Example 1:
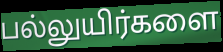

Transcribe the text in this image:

பல்லுயிர்களை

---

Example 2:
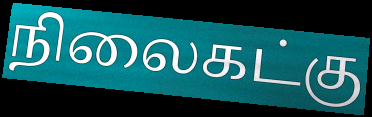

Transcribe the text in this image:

நிலைகட்கு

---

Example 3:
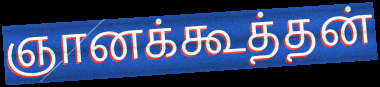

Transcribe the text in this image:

ஞானக்கூத்தன்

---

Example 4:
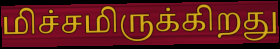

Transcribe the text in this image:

மிச்சமிருக்கிறது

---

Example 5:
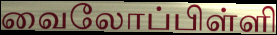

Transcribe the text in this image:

வைலோப்பிள்ளி